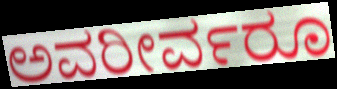
ಅವರೀರ್ವರೂ